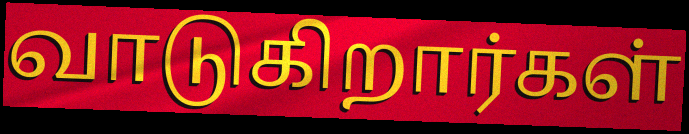
வாடுகிறார்கள்